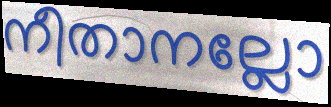
നീതാനല്ലോ